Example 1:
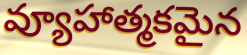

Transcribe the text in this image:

వ్యూహాత్మకమైన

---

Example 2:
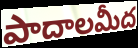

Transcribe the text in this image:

పాదాలమీద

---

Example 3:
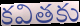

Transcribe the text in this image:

కవితకు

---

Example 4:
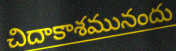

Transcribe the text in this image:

చిదాకాశమునందు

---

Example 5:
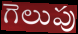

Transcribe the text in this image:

గెలుపు